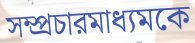
সম্প্রচারমাধ্যমকে